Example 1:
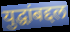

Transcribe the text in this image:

युद्धांबद्दल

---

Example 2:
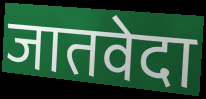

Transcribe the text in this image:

जातवेदा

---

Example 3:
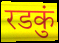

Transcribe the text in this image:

रडकुं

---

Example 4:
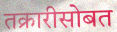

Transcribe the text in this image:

तक्रारीसोबत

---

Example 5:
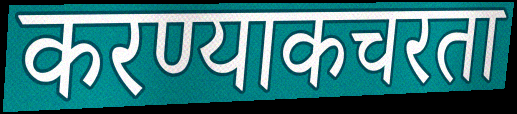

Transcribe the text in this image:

करण्याकचरता